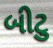
બીટુ